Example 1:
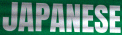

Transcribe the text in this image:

JAPANESE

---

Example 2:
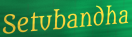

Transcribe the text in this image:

Setubandha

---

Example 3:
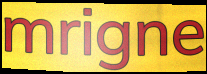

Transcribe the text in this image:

mrigne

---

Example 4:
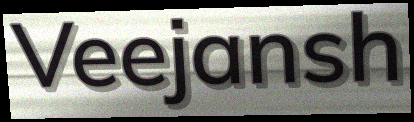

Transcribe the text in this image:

Veejansh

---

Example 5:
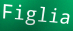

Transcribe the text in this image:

Figlia